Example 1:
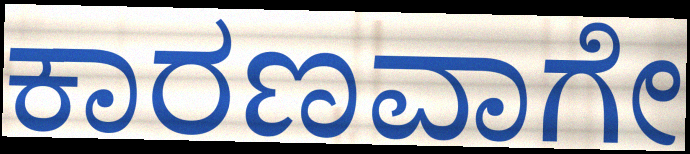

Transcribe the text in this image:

ಕಾರಣವಾಗೇ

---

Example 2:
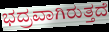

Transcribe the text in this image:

ಭದ್ರವಾಗಿರುತ್ತದೆ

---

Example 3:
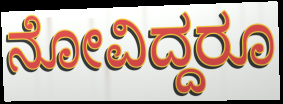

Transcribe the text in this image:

ನೋವಿದ್ದರೂ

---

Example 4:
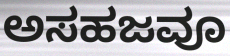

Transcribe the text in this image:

ಅಸಹಜವೂ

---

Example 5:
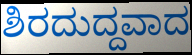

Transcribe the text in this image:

ಶಿರದುದ್ದವಾದ